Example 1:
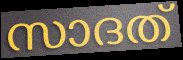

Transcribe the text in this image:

സാദത്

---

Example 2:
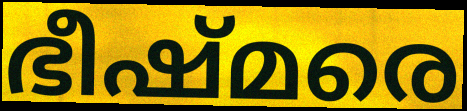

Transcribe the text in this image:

ഭീഷ്മരെ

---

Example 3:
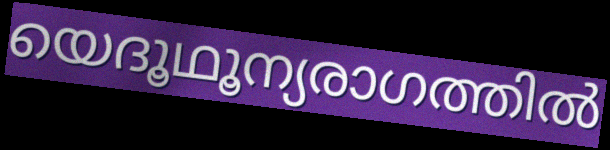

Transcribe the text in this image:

യെദൂഥൂന്യരാഗത്തിൽ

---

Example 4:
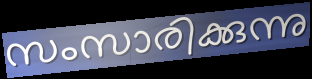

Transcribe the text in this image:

സംസാരിക്കുന്നു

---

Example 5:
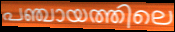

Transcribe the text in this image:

പഞ്ചായത്തിലെ